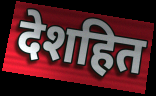
देशहित